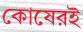
কোষেরই